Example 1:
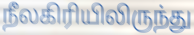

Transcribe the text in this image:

நீலகிரியிலிருந்து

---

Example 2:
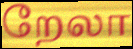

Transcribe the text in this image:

றேலா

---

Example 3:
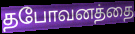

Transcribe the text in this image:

தபோவனத்தை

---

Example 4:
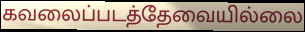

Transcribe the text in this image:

கவலைப்படத்தேவையில்லை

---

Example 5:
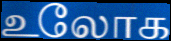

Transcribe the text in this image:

உலோக